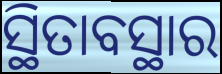
ସ୍ଥିତାବସ୍ଥାର